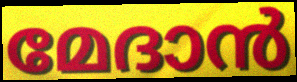
മേദാൻ